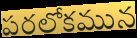
పరలోకమున